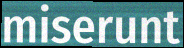
miserunt